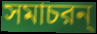
সমাচরন্